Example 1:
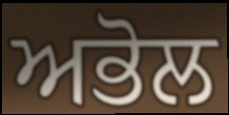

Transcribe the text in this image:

ਅਭੋਲ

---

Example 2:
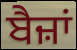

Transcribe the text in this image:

ਬੈਜ਼ਾਂ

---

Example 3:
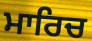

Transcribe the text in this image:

ਮਾਰਿਚ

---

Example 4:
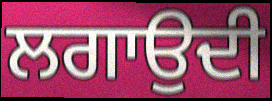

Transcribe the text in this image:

ਲਗਾਉਦੀ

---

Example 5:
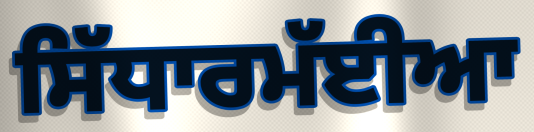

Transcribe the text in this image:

ਸਿੱਧਾਰਮੱਈਆ